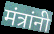
मंत्रांनी